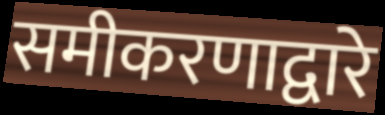
समीकरणाद्वारे